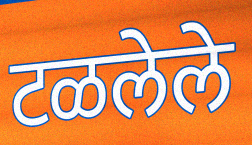
टळलेले